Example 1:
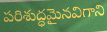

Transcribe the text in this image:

పరిశుద్ధమైనవిగాని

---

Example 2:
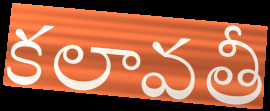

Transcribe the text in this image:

కలావతీ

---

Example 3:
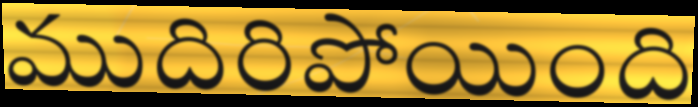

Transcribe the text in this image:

ముదిరిపోయింది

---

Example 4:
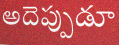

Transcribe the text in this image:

అదెప్పుడూ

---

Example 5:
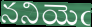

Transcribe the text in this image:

ననియెఁ